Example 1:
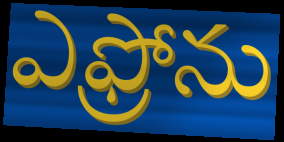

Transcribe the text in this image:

ఎఫ్రోను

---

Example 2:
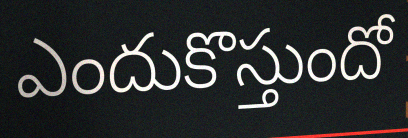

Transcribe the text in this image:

ఎందుకొస్తుందో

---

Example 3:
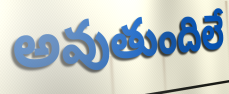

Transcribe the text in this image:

అవుతుందిలే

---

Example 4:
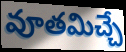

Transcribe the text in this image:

వూతమిచ్చే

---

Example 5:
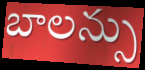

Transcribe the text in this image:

బాలన్సు